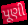
પૂણી